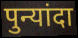
पुन्यांदा